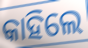
କାହିଲେ